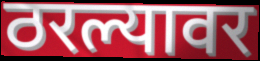
ठरल्यावर